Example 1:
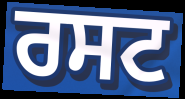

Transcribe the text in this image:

ਰਸਟ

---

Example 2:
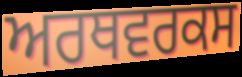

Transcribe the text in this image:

ਅਰਥਵਰਕਸ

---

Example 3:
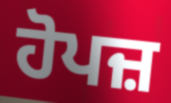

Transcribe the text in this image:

ਹੋਪਜ਼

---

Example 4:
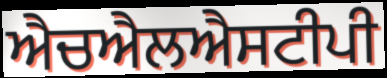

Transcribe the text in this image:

ਐਚਐਲਐਸਟੀਪੀ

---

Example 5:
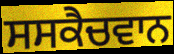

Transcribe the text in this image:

ਸਸਕੈਚਵਾਨ